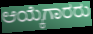
ಆಯ್ಕೆಗಾರರು